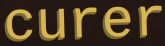
curer